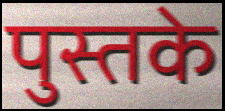
पुस्‍तके